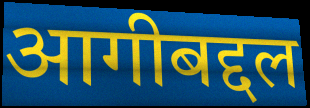
आगीबद्दल